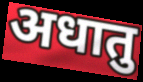
अधातु